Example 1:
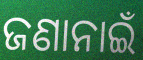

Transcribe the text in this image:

ଜଣାନାଇଁ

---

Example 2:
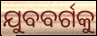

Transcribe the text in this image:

ଯୁବବର୍ଗକୁ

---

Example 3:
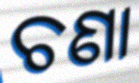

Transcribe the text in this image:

ଚଣା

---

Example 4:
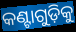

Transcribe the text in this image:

କଣ୍ଟାଗୁଡ଼ିକୁ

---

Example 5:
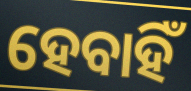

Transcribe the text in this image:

ହେବାହିଁ